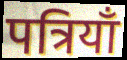
पत्रियाँ